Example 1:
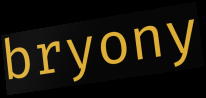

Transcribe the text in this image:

bryony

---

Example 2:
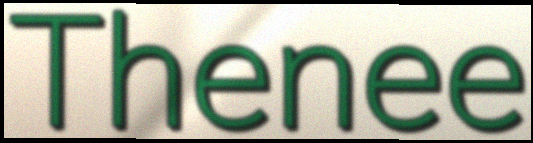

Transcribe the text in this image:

Thenee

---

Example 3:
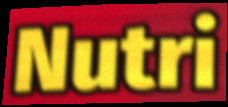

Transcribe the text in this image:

Nutri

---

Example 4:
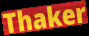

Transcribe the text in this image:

Thaker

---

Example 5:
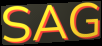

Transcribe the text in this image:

SAG